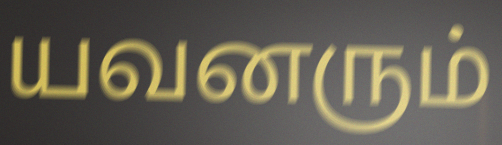
யவனரும்